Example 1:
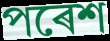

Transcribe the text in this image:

পৰেশ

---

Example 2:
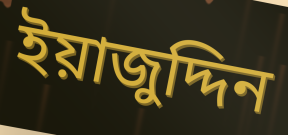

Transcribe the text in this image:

ইয়াজুদ্দিন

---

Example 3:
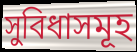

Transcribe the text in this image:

সুবিধাসমূহ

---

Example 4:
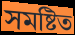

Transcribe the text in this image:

সমষ্টিত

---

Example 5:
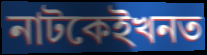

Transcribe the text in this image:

নাটকেইখনত